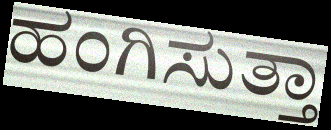
ಹಂಗಿಸುತ್ತಾ